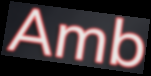
Amb